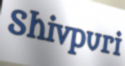
Shivpuri